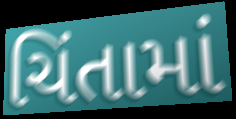
ચિંતામાં